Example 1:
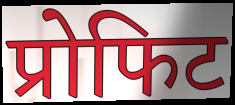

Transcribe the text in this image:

प्रोफिट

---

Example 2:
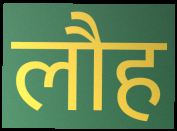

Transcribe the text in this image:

लौह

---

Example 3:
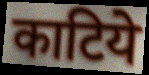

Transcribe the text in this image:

काटिये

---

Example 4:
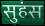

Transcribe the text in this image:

सुहंस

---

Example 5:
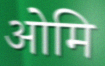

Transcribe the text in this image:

ओमि